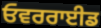
ਓਵਰਰਾਈਡ